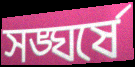
সঙ্ঘর্ষে